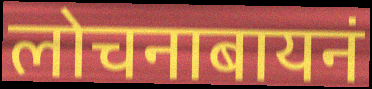
लोचनाबायनं